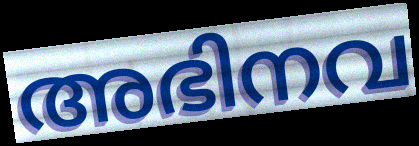
അഭിനവ